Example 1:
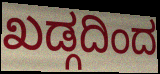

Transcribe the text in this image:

ಖಡ್ಗದಿಂದ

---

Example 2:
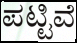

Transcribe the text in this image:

ಪಟ್ಟಿವೆ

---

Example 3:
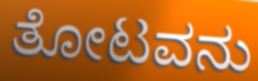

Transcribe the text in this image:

ತೋಟವನು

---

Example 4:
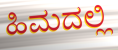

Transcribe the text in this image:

ಹಿಮದಲ್ಲಿ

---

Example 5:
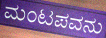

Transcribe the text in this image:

ಮಂಟಪವನು